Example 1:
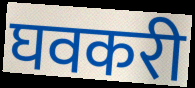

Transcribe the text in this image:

घवकरी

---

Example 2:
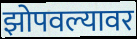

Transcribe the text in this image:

झोपवल्यावर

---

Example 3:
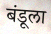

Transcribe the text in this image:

बंडूला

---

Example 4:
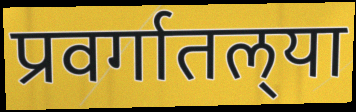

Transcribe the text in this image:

प्रवर्गातल्या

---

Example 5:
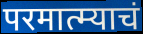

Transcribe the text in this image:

परमात्म्याचं